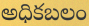
అధికబలం